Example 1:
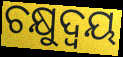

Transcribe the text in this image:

ଚକ୍ଷୁଦ୍ୱୟ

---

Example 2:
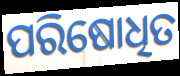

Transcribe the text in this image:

ପରିଷୋଧିତ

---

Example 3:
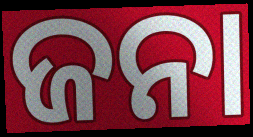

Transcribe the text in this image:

ଜନା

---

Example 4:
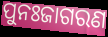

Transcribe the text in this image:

ପୁନଃଜାଗରଣ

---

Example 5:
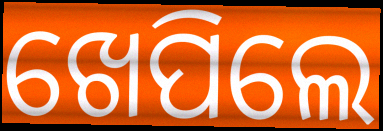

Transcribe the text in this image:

ଖେପିଲେ